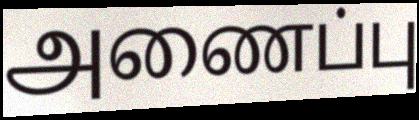
அணைப்பு